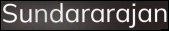
Sundararajan